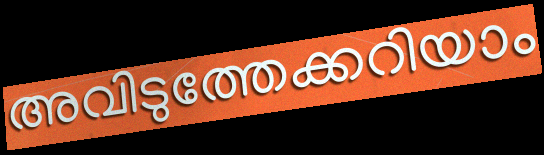
അവിടുത്തേക്കറിയാം